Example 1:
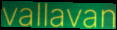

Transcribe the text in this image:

vallavan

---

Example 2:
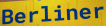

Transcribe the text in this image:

Berliner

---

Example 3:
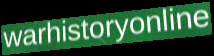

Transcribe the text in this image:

warhistoryonline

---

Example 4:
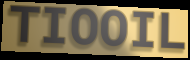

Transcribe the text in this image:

TIOOIL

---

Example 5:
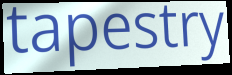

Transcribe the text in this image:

tapestry